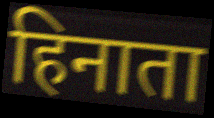
हिनाता